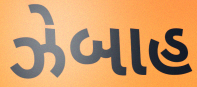
ઝેબાહ